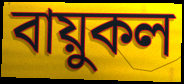
বায়ুকল